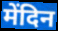
मेंदिन